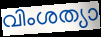
വിംശത്യാ